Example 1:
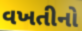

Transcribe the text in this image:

વખતીનો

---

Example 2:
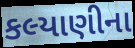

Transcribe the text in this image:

કલ્યાણીના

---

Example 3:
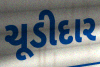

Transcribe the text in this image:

ચૂડીદાર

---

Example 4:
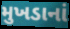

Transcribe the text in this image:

મુખડાનાં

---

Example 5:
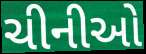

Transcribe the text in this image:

ચીનીઓ